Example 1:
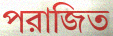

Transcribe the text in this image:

পরাজিত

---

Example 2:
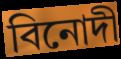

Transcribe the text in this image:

বিনোদী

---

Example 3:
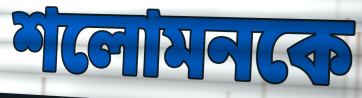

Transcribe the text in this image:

শলোমনকে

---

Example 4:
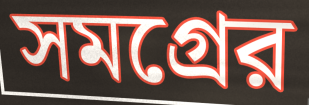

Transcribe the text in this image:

সমগ্রের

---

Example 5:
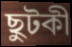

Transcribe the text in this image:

ছুটকী